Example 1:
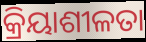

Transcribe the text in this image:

କ୍ରିୟାଶୀଳତା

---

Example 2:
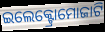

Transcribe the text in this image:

ଇଲେକ୍ଟ୍ରୋମୋଜାଟି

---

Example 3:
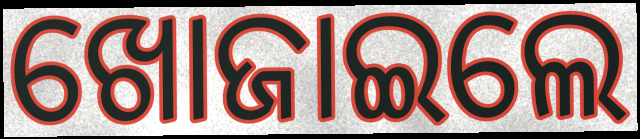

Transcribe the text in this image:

ଖୋଜାଇଲେ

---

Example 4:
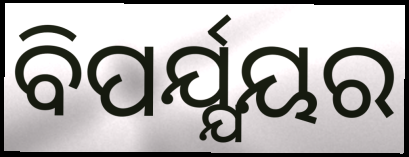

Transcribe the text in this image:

ବିପର୍ଯ୍ଯୟର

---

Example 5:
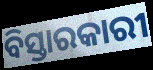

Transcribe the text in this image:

ବିସ୍ତାରକାରୀ